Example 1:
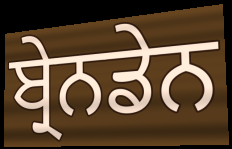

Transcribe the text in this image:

ਬ੍ਰੇਨਡੇਨ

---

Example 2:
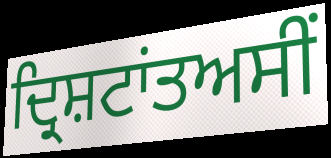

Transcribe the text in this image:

ਦ੍ਰਿਸ਼ਟਾਂਤਅਸੀਂ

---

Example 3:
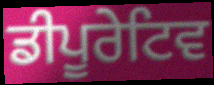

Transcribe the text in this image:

ਡੀਪੂਰੇਟਿਵ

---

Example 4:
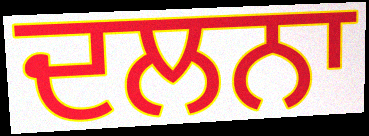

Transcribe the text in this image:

ਦਲਨਾ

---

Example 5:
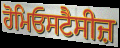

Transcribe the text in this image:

ਹੋਮਿਓਸਟੈਸੀਜ਼